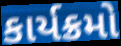
કાર્યક્રમો